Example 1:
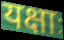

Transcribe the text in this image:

यक्षाः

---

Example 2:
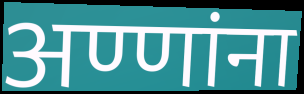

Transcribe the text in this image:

अण्णांना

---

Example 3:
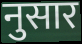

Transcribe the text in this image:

नुसार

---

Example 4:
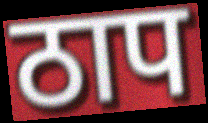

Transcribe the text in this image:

ठाप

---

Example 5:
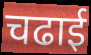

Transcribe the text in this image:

चढाई